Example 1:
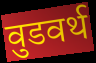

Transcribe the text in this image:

वुडवर्थ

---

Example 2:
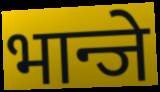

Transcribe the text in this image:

भान्जे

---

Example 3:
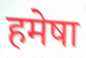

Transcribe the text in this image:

हमेषा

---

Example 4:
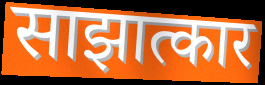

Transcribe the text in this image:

साझात्कार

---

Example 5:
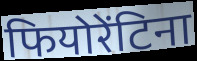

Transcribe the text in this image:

फियोरेंटिना